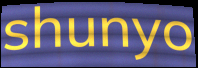
shunyo